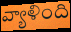
వ్యాళింది